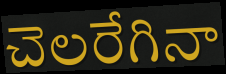
చెలరేగినా